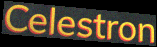
Celestron